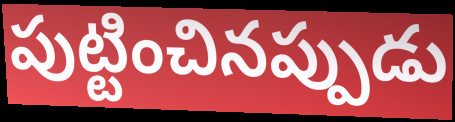
పుట్టించినప్పుడు